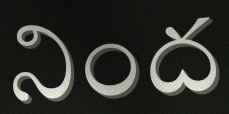
నింద